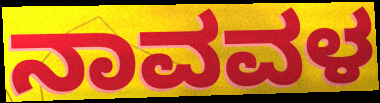
ನಾವವಳ